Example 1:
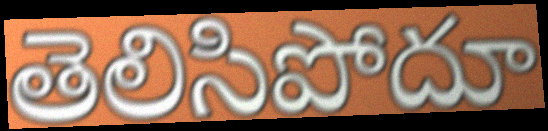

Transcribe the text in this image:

తెలిసిపోదూ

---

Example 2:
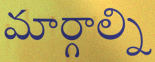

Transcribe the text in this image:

మార్గాల్ని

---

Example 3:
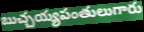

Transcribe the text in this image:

బుచ్చయ్యపంతులుగారు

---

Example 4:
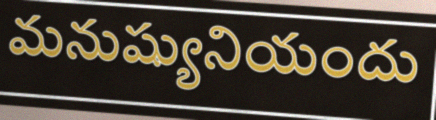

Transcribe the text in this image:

మనుష్యునియందు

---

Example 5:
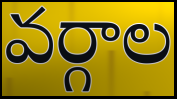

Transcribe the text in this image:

వర్గాల